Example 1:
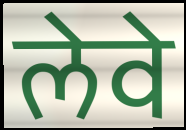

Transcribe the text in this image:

लेवे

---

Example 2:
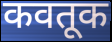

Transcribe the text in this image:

कवतूक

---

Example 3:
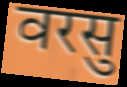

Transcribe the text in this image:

वरसु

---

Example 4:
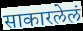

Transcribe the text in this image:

साकारलेलं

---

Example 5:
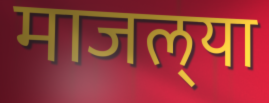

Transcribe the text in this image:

माजल्या